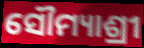
ସୌମ୍ୟାଶ୍ରୀ